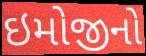
ઇમોજીનો